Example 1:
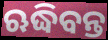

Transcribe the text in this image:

ଋଦ୍ଧିବନ୍ତ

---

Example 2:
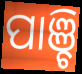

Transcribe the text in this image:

ପାଞ୍ଚି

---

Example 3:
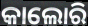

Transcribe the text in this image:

କାଲୋରି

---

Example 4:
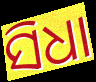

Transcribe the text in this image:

ସିଧା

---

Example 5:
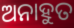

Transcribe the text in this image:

ଅନାହୁତ